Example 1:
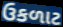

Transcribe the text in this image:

ઉકળાટ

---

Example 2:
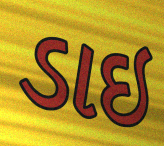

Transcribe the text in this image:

ડાઇ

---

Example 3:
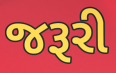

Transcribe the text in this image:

જરૂરી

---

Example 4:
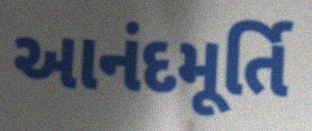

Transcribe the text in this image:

આનંદમૂર્તિ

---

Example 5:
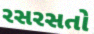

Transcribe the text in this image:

રસરસતો